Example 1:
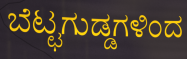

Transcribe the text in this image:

ಬೆಟ್ಟಗುಡ್ಡಗಳಿಂದ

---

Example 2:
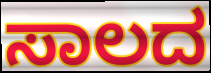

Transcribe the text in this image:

ಸಾಲದ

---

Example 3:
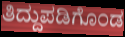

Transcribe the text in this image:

ತಿದ್ದುಪಡಿಗೊಂಡ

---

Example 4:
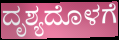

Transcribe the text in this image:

ದೃಶ್ಯದೊಳಗೆ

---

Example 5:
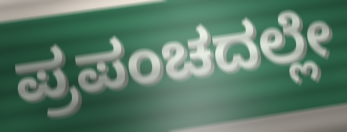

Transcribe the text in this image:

ಪ್ರಪಂಚದಲ್ಲೇ